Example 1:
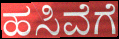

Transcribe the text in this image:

ಹಸಿವೆಗೆ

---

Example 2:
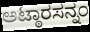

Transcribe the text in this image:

ಅಟ್ಠಾರಸನ್ನಂ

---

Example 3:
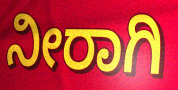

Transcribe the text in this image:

ನೀರಾಗಿ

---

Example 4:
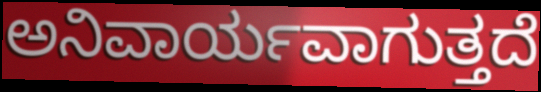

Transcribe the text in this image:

ಅನಿವಾರ್ಯವಾಗುತ್ತದೆ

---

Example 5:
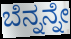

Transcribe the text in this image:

ಬೆನ್ನನ್ನೇ